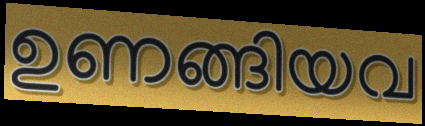
ഉണങ്ങിയവ